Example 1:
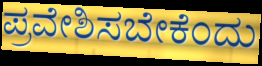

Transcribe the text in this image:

ಪ್ರವೇಶಿಸಬೇಕೆಂದು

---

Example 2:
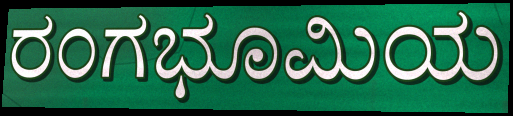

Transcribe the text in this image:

ರಂಗಭೂಮಿಯ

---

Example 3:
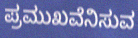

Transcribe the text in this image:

ಪ್ರಮುಖವೆನಿಸುವ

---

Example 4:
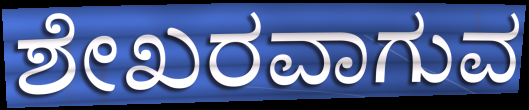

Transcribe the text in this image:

ಶೇಖರವಾಗುವ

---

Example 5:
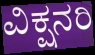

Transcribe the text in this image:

ವಿಕ್ಷನರಿ